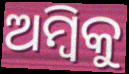
ଅମ୍ବିକୁ